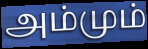
அம்மும்